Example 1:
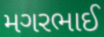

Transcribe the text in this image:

મગરભાઈ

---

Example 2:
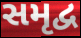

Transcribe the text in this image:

સમૃદ્વ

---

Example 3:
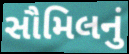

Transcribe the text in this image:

સૌમિલનું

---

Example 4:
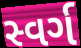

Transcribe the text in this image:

સ્વર્ગ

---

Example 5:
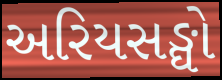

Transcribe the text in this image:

અરિયસઙ્ઘો